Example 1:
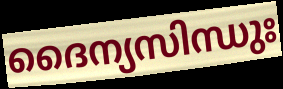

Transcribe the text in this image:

ദൈന്യസിന്ധുഃ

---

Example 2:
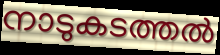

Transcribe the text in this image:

നാടുകടത്തൽ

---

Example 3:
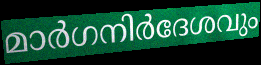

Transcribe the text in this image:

മാർഗനിർദേശവും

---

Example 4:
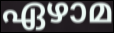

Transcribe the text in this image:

ഏഴാമ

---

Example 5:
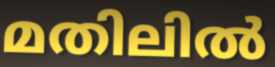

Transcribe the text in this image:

മതിലിൽ